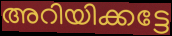
അറിയിക്കട്ടേ